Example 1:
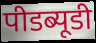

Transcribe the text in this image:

पीडब्यूडी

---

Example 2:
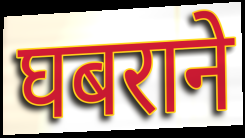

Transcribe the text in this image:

घबराने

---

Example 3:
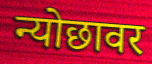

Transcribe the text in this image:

न्योछावर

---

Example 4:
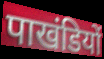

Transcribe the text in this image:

पाखंडियों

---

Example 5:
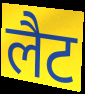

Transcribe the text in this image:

लैट